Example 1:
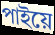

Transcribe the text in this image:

পাইয়ে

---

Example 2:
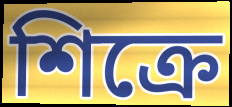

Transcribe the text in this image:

শিক্রে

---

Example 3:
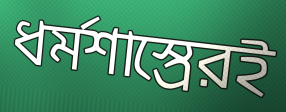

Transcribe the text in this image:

ধর্মশাস্ত্রেরই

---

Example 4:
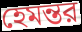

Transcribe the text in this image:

হেমন্তর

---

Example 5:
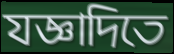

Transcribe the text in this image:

যজ্ঞাদিতে